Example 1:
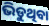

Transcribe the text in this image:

ଭିଡୁଥିବା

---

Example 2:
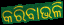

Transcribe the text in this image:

କରିବାଭଳି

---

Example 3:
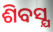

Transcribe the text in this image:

ଶିବସ୍ଯ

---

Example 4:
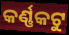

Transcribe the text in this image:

କର୍ଣ୍ଣକଟୁ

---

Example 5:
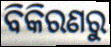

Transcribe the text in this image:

ବିକିରଣରୁ